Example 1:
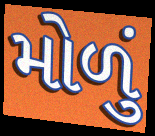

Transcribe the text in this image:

મોળું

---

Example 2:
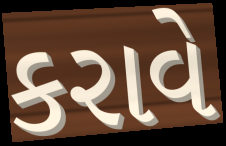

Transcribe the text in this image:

કરાવે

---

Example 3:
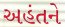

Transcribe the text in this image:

અહંતને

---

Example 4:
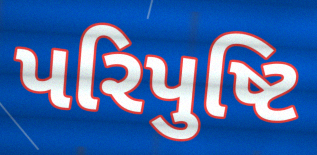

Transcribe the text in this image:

પરિપુષ્ટિ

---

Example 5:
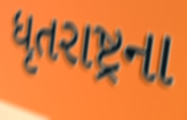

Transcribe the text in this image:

ધૃતરાષ્ટ્રના